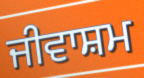
ਜੀਵਾਸ਼ਮ